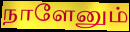
நாளேனும்